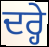
ਦਰ੍ਹੇ